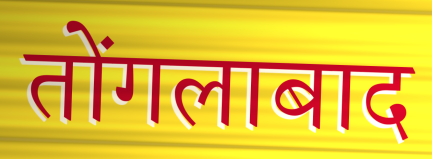
तोंगलाबाद